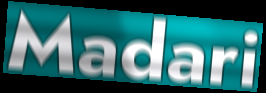
Madari